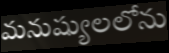
మనుష్యులలోను